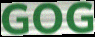
GOG